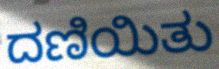
ದಣಿಯಿತು